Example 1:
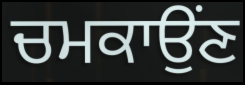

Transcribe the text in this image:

ਚਮਕਾਉਂਣ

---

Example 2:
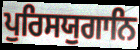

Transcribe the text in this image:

ਪੁਰਿਸਯੁਗਾਨਿ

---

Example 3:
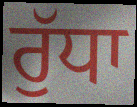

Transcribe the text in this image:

ਰੁੱਧਾ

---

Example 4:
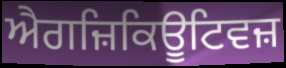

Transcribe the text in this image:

ਐਗਜ਼ਿਕਿਊਟਿਵਜ਼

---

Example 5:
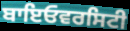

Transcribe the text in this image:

ਬਾਇਓਵਰਸਿਟੀ